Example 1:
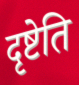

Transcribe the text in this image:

दृष्टेति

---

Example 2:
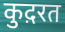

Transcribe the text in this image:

कुद़रत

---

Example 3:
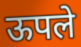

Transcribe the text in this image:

ऊपले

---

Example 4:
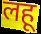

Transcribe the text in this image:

लहू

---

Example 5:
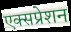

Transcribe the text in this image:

एक्सप्रेशन